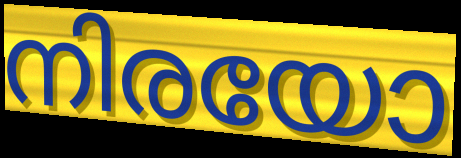
നിരയോ